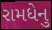
રામધેનુ